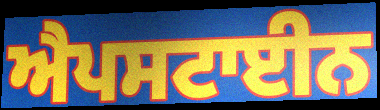
ਐਪਸਟਾਈਨ